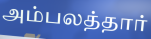
அம்பலத்தார்